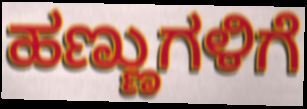
ಹಣ್ಣುಗಳಿಗೆ